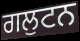
ਗਲੁਟਨ